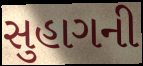
સુહાગની